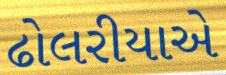
ઢોલરીયાએ